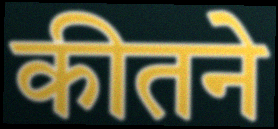
कीतने